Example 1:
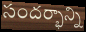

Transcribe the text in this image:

సందర్భాన్ని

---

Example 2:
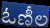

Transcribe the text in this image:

ఓణీల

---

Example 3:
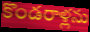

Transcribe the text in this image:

కొండరాళ్లను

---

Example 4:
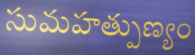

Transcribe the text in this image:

సుమహత్పుణ్యం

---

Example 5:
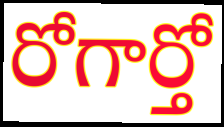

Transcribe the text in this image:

రోగార్తో